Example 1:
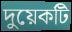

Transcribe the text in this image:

দুয়েকটি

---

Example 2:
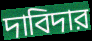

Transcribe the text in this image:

দাবিদার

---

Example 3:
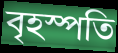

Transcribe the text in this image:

বৃহস্পতি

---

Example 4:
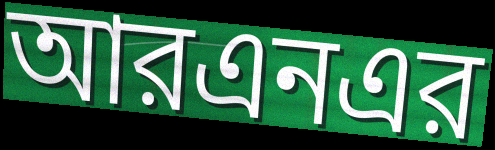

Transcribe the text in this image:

আরএনএর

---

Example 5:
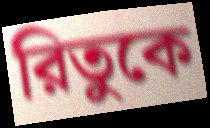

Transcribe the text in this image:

রিতুকে